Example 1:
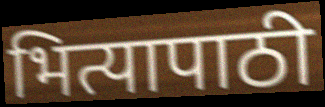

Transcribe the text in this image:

भित्यापाठी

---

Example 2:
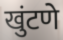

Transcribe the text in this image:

खुंटणे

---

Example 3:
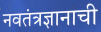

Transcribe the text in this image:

नवतंत्रज्ञानाची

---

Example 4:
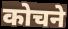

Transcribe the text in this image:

कोचने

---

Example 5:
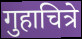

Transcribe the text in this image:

गुहाचित्रे